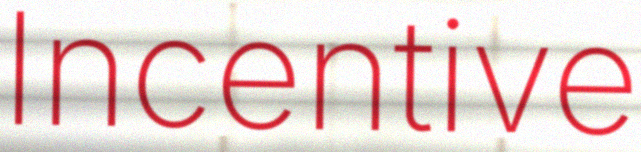
Incentive